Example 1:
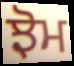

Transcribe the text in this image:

ਝੋਮ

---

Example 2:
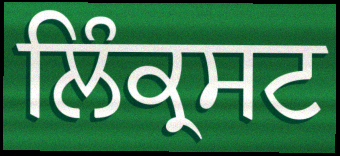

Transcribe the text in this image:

ਲਿੰਕ੍ਰਸਟ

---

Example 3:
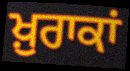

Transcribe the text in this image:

ਖ਼ੁਰਾਕਾਂ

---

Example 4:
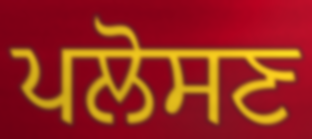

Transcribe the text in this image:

ਪਲੋਸਣ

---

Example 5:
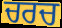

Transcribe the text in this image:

ਚਰਚ